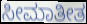
ಸೀಮಾತೀತ